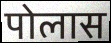
पोलास